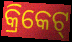
କ୍ରିକେଟ୍